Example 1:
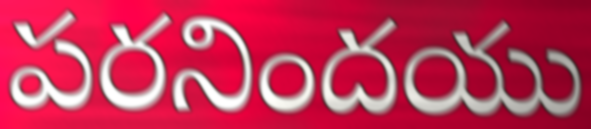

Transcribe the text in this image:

పరనిందయు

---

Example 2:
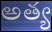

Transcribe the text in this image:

అత్య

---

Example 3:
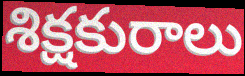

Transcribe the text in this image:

శిక్షకురాలు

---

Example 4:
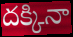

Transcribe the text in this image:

దక్కినా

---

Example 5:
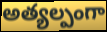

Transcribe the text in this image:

అత్యల్పంగా